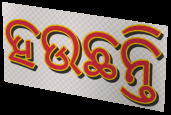
ହଉଛନ୍ତି